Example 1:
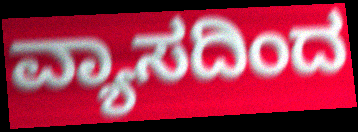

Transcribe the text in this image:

ವ್ಯಾಸದಿಂದ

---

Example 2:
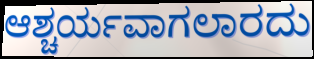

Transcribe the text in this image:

ಆಶ್ಚರ್ಯವಾಗಲಾರದು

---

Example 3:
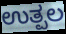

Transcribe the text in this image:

ಉತ್ಪಲ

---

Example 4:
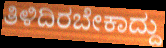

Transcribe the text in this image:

ತಿಳಿದಿರಬೇಕಾದ್ದು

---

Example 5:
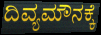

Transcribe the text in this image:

ದಿವ್ಯಮೌನಕ್ಕೆ